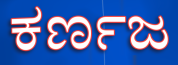
ಕರ್ಣಜ